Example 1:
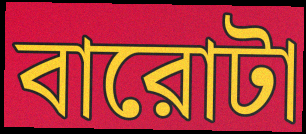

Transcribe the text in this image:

বারোটা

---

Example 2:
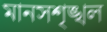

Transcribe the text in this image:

মানসশৃঙ্খল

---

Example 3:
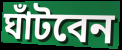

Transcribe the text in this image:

ঘাঁটবেন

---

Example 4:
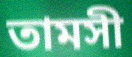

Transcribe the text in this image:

তামসী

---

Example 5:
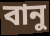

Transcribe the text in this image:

বানু